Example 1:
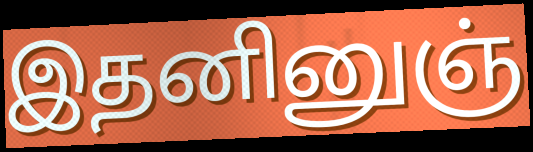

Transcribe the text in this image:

இதனினுஞ்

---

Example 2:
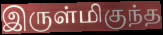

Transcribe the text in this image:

இருள்மிகுந்த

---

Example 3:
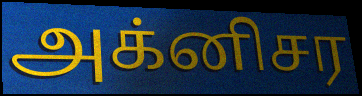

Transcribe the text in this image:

அக்னிசர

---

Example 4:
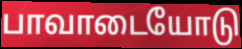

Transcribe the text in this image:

பாவாடையோடு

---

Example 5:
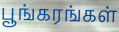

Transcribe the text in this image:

பூங்கரங்கள்